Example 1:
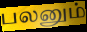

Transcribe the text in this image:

பலனும்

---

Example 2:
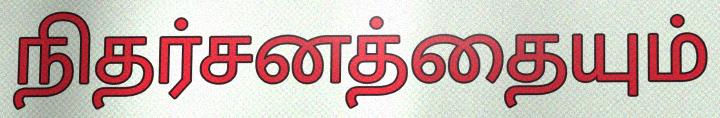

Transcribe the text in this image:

நிதர்சனத்தையும்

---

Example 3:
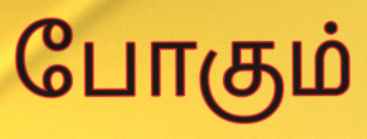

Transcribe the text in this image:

போகும்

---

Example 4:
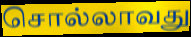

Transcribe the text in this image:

சொல்லாவது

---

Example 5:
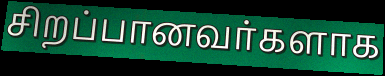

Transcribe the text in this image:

சிறப்பானவர்களாக